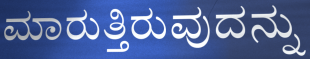
ಮಾರುತ್ತಿರುವುದನ್ನು